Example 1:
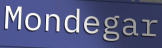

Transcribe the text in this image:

Mondegar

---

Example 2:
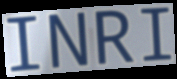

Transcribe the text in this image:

INRI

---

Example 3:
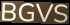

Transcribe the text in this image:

BGVS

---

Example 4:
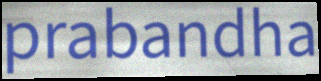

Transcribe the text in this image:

prabandha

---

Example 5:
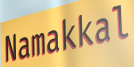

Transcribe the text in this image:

Namakkal